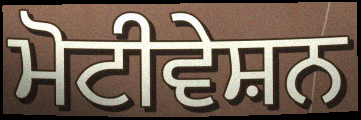
ਮੋਟੀਵੇਸ਼ਨ